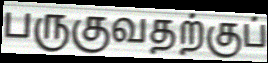
பருகுவதற்குப்